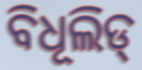
ବିଧୂଲିଡ୍